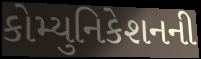
કોમ્યુનિકેશનની